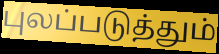
புலப்படுத்தும்